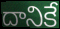
దానికే